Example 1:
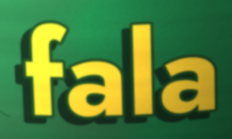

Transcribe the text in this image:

fala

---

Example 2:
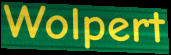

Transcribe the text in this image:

Wolpert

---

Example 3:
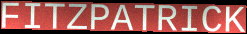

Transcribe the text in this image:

FITZPATRICK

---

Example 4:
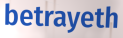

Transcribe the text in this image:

betrayeth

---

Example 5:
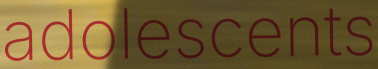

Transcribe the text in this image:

adolescents